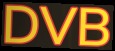
DVB